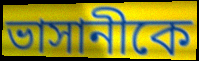
ভাসানীকে